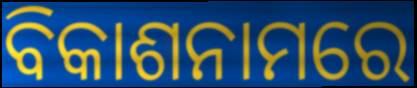
ବିକାଶନାମରେ